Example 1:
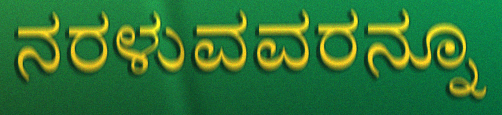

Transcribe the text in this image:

ನರಳುವವರನ್ನೂ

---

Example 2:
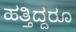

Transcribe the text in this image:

ಹತ್ತಿದ್ದರೂ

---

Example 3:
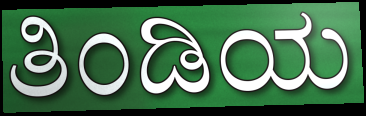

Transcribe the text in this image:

ತಿಂಡಿಯ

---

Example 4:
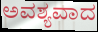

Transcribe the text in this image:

ಅವಶ್ಯವಾದ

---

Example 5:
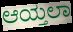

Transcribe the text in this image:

ಆಯ್ತಲಾ